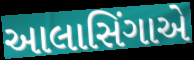
આલાસિંગાએ